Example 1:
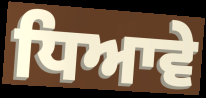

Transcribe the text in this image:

ਧਿਆਵੇ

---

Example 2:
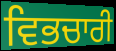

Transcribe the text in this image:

ਵਿਭਚਾਰੀ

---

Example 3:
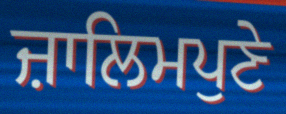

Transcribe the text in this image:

ਜ਼ਾਲਿਮਪੁਣੇ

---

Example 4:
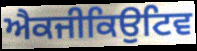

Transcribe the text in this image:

ਐਕਜੀਕਿਉਟਿਵ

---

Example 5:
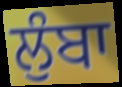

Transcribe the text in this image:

ਲੁੰਬਾ